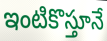
ఇంటికొస్తూనే